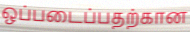
ஒப்படைப்பதற்கான